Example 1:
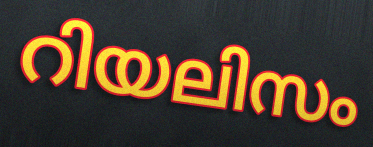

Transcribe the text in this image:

റിയലിസം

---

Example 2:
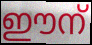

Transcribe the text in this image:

ഈന്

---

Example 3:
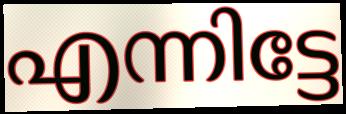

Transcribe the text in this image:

എന്നിട്ടേ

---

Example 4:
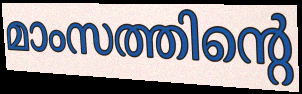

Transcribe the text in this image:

മാംസത്തിന്റെ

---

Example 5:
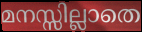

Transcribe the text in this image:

മനസ്സില്ലാതെ